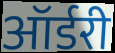
ऑर्डरी